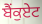
ਬੈਂਕੁਏਟ